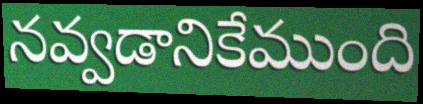
నవ్వడానికేముంది